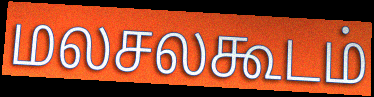
மலசலகூடம்